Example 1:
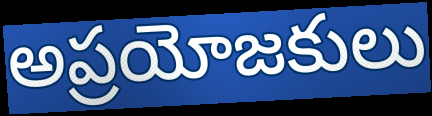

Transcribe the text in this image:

అప్రయోజకులు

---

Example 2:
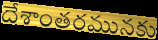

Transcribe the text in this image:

దేశాంతరమునకు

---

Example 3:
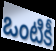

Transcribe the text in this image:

ఒంటికీ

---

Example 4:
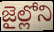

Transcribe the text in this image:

జైల్లోని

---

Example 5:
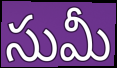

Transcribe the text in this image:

సుమీ